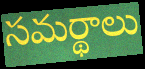
సమర్థాలు